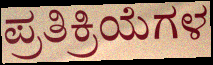
ಪ್ರತಿಕ್ರಿಯೆಗಳ